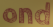
ond